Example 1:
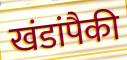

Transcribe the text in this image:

खंडांपैकी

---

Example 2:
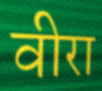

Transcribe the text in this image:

वीरा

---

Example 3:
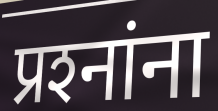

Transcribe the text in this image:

प्रश्‍नांना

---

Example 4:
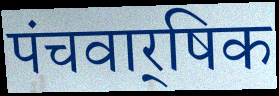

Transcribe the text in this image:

पंचवार्षिक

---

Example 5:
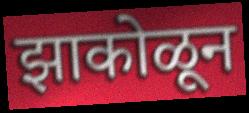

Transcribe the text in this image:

झाकोळून